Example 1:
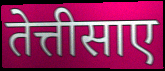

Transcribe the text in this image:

तेत्तीसाए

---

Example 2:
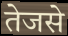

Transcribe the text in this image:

तेजसे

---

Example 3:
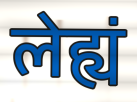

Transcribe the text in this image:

लेह्यं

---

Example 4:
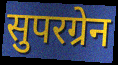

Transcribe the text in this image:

सुपरग्रेन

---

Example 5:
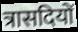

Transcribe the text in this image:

त्रासदियों